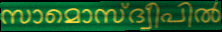
സാമൊസ്ദ്വീപിൽ